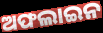
ଅଫଲାଇନ